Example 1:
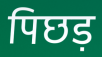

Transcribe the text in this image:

पिछड़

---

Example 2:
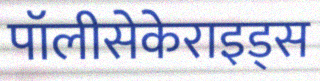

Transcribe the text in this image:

पॉलीसेकेराइड्स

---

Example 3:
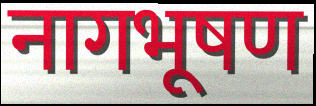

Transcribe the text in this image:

नागभूषण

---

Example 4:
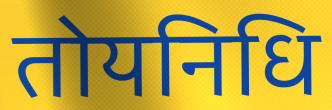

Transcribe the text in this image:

तोयनिधि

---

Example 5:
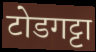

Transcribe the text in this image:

टोडगट्टा